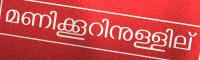
മണിക്കൂറിനുള്ളില്